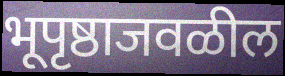
भूपृष्ठाजवळील